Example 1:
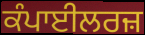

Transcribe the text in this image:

ਕੰਪਾਈਲਰਜ਼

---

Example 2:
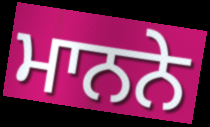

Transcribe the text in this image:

ਮਾਨਨੇ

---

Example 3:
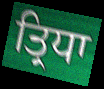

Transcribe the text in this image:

ਤ੍ਰਿਧਾ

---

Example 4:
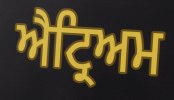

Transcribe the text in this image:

ਐਟ੍ਰਿਅਮ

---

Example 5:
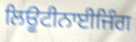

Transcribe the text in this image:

ਲਿਊਟੀਨਾਈਜਿੰਗ